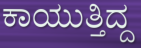
ಕಾಯುತ್ತಿದ್ದ